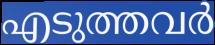
എടുത്തവർ